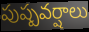
పుష్పవర్షాలు